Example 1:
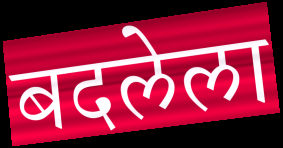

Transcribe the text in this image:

बदलेला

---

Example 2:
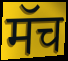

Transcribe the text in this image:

मॅच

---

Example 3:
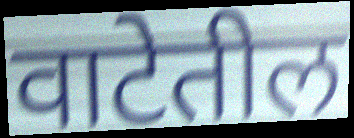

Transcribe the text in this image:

वाटेतील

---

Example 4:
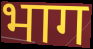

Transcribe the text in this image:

भाग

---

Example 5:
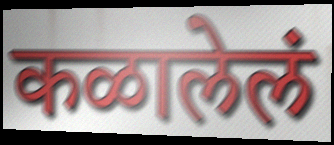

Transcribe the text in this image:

कळालेलं